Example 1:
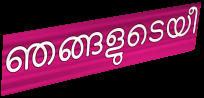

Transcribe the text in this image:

ഞങ്ങളുടെയീ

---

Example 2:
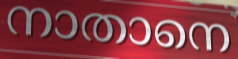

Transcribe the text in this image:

നാതാനെ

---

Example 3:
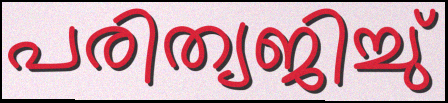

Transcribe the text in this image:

പരിത്യജിച്ചു്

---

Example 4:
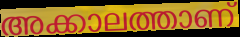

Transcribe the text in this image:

അക്കാലത്താണ്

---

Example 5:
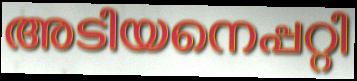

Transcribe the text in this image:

അടിയനെപ്പറ്റി